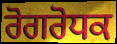
ਰੋਗਰੋਧਕ